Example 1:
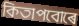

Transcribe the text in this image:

কিতাপবোৰে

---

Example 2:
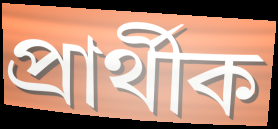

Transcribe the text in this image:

প্ৰাৰ্থীক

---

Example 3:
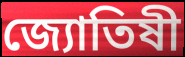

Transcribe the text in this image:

জ্যোতিষী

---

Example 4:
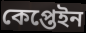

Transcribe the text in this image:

কেপ্তেইন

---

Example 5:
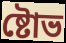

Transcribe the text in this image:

ষ্টোভ